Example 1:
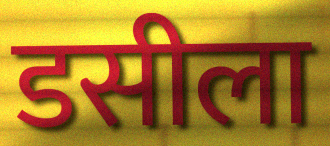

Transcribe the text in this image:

डसीला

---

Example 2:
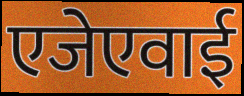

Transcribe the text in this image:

एजेएवाई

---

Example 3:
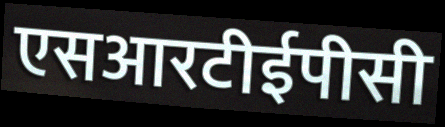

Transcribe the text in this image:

एसआरटीईपीसी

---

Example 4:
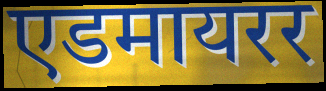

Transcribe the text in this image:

एडमायरर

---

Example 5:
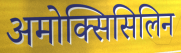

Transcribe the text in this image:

अमोक्सिसिलिन